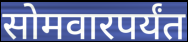
सोमवारपर्यंत